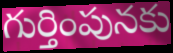
గుర్తింపునకు